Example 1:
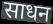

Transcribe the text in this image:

साधन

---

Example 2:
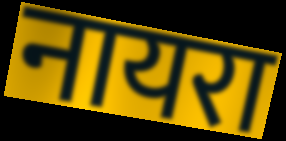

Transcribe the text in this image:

नायरा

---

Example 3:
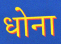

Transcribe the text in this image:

धोना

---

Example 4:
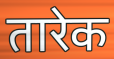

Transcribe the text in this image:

तारेक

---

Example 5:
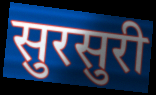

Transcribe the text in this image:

सुरसुरी